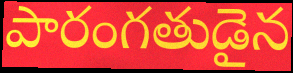
పారంగతుడైన